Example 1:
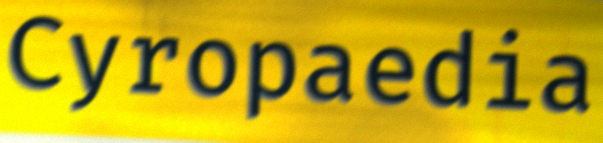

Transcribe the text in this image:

Cyropaedia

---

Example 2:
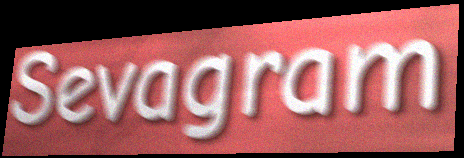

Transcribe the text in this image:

Sevagram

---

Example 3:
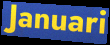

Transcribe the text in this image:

Januari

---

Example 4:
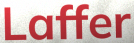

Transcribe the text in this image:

Laffer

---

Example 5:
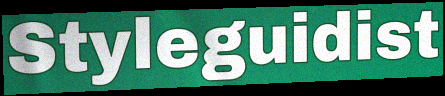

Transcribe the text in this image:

Styleguidist